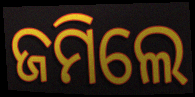
ଜମିଲେ